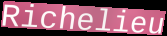
Richelieu